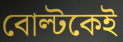
বোল্টকেই